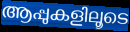
ആപ്പുകളിലൂടെ